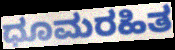
ಧೂಮರಹಿತ